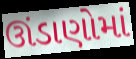
ઊંડાણોમાં